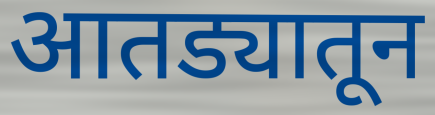
आतड्यातून